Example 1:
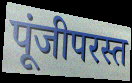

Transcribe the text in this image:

पूंजीपरस्त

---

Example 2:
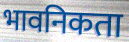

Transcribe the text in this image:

भावनिकता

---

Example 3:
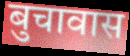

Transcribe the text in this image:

बुचावास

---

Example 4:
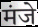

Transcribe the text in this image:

मंजे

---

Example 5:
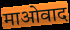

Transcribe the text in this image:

माओवाद